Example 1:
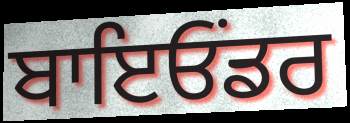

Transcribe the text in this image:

ਬਾਇਓਂਡਰ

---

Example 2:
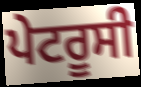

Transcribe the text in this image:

ਪੇਟਰੂਸੀ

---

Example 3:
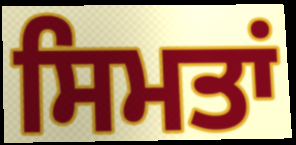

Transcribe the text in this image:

ਸਿਮਤਾਂ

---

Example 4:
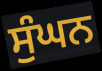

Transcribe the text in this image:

ਸੁੰਘਨ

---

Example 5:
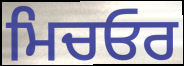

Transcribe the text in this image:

ਮਿਚਓਰ